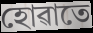
হোৱাতে